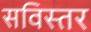
सविस्तर